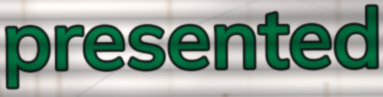
presented